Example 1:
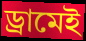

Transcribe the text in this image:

ড্রামেই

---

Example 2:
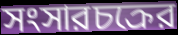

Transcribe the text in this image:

সংসারচক্রের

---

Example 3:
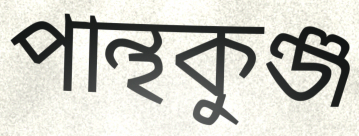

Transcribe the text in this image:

পান্থকুঞ্জ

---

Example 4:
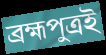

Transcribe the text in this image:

ব্রহ্মপুত্রই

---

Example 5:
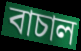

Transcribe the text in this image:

বাচাল